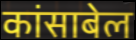
कांसाबेल